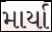
માર્યા